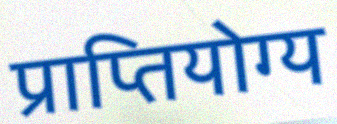
प्राप्तियोग्य